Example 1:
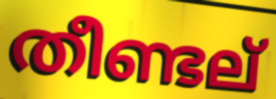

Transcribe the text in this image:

തീണ്ടല്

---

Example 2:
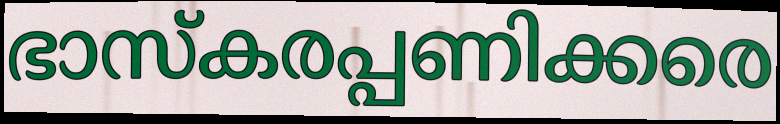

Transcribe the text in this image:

ഭാസ്കരപ്പണിക്കരെ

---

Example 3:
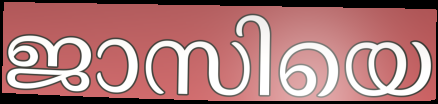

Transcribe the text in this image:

ജാസിയെ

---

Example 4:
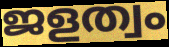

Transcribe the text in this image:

ജളത്വം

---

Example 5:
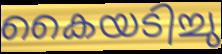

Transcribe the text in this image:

കൈയടിച്ചു